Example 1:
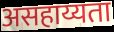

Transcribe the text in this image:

असहाय्यता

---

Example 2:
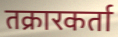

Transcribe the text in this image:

तक्रारकर्ता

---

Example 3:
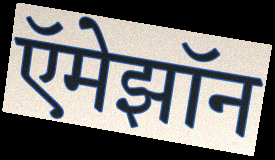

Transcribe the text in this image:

ऍमेझॉन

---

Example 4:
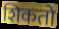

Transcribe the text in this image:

शिकतो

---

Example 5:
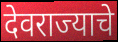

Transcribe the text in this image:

देवराज्याचे